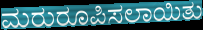
ಮರುರೂಪಿಸಲಾಯಿತು